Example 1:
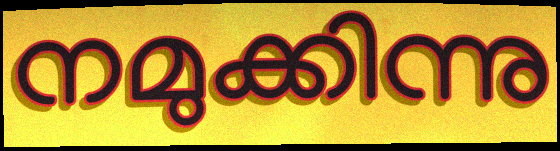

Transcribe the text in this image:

നമുക്കിന്നു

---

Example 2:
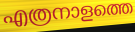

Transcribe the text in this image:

എത്രനാളത്തെ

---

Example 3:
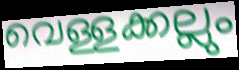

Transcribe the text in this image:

വെള്ളക്കല്ലും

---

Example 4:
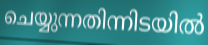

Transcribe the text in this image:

ചെയ്യുന്നതിന്നിടയിൽ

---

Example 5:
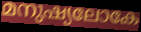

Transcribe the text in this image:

മനുഷ്യലോകേ